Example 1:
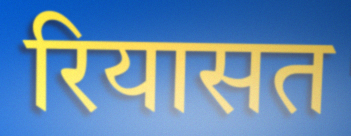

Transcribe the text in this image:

रियासत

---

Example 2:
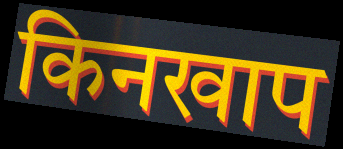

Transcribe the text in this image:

किनखाप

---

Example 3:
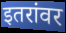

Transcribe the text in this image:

इतरांवर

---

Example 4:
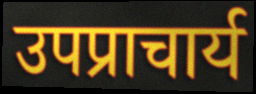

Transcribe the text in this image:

उपप्राचार्य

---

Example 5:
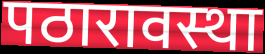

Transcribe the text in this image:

पठारावस्था